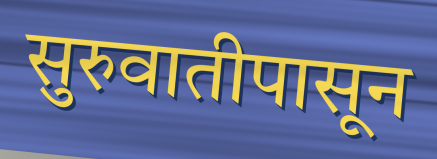
सुरुवातीपासून